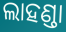
ଲାହଣ୍ଡା